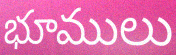
భూములు